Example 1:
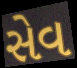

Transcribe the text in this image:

સેવ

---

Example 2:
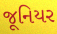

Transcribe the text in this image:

જૂનિયર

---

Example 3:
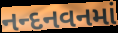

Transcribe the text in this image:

નન્દનવનમાં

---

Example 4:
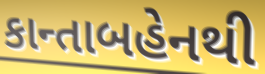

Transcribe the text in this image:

કાન્તાબહેનથી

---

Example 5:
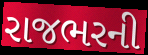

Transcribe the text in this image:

રાજભરની